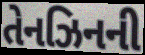
તેનઝિનની